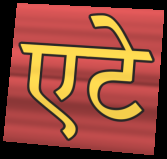
एटे